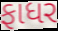
ફાધર